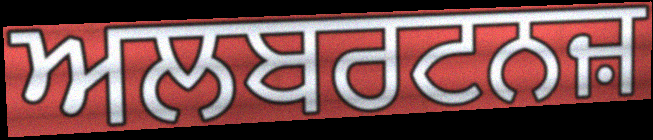
ਅਲਬਰਟਨਜ਼